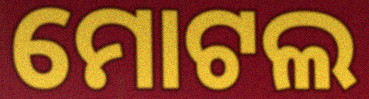
ମୋଟଲ